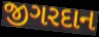
જીગરદાન